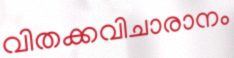
വിതക്കവിചാരാനം